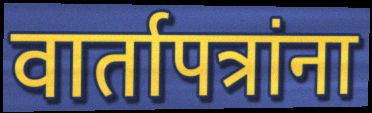
वार्तापत्रांना